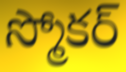
స్మోకర్